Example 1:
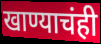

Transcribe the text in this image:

खाण्याचंही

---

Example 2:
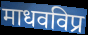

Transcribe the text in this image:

माधवविप्र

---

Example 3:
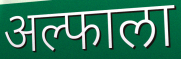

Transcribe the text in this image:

अल्फाला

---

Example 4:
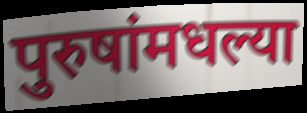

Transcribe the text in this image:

पुरुषांमधल्या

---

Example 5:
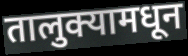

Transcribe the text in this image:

तालुक्यामधून